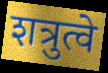
शत्रुत्वे